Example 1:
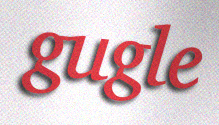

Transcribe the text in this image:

gugle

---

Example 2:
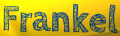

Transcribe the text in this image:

Frankel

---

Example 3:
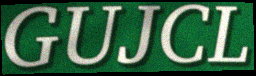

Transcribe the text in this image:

GUJCL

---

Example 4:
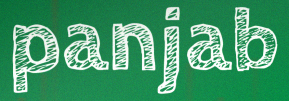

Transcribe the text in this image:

panjab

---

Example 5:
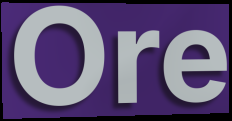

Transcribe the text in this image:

Ore